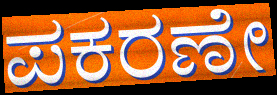
ಪಕರಣೇ